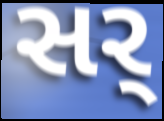
સર્